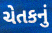
ચેતકનું